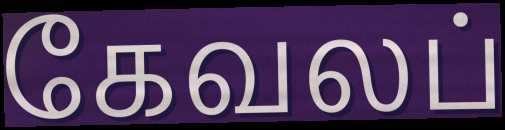
கேவலப்